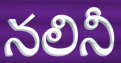
నలినీ